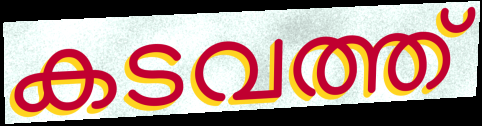
കടവത്ത്